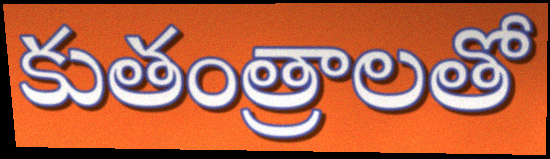
కుతంత్రాలతో